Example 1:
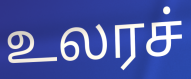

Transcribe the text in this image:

உலரச்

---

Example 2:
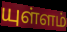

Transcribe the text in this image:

யுள்ளம்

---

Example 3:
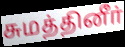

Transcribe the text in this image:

சுமத்தினீர்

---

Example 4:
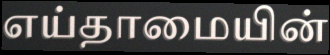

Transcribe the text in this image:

எய்தாமையின்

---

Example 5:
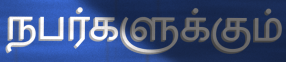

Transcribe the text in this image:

நபர்களுக்கும்